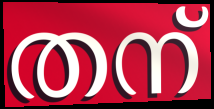
തന്